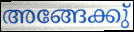
അങ്ങേക്കു്